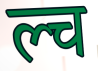
ल्च